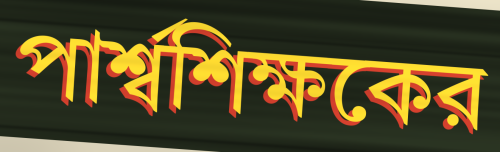
পার্শ্বশিক্ষকের